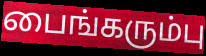
பைங்கரும்பு